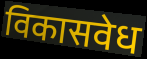
विकासवेध